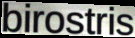
birostris